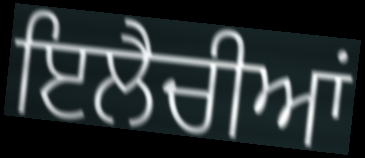
ਇਲੈਚੀਆਂ